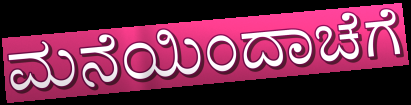
ಮನೆಯಿಂದಾಚೆಗೆ